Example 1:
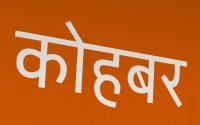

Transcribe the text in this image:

कोहबर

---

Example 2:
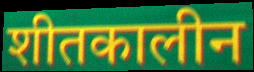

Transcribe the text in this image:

शीतकालीन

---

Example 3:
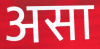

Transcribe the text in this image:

असा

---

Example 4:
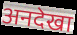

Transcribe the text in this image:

अनदेखा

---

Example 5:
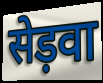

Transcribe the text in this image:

सेड़वा